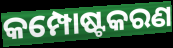
କମ୍ପୋଷ୍ଟକରଣ